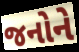
જનોને